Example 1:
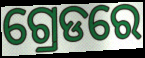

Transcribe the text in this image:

ଗ୍ରେଡରେ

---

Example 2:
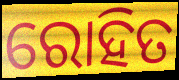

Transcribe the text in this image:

ରୋହିତ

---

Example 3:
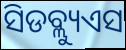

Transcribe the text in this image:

ସିଡବ୍ଲ୍ୟୁଏସ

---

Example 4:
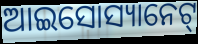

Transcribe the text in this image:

ଆଇସୋସ୍ୟାନେଟ୍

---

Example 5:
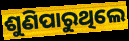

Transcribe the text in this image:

ଶୁଣିପାରୁଥିଲେ